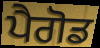
ਪੈਗੋਡ